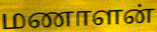
மணாளன்